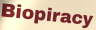
Biopiracy